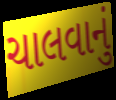
ચાલવાનું